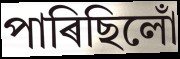
পাৰিছিলোঁ